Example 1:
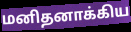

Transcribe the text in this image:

மனிதனாக்கிய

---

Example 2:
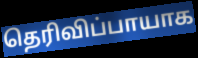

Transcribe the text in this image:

தெரிவிப்பாயாக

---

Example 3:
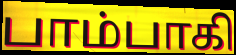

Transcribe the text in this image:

பாம்பாகி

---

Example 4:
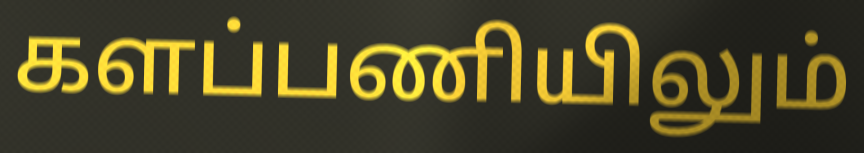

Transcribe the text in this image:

களப்பணியிலும்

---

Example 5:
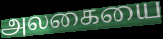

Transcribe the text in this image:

அலகையை